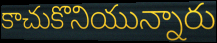
కాచుకొనియున్నారు